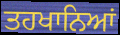
ਤਹਖਾਨਿਆਂ